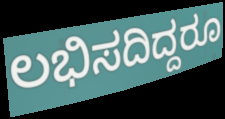
ಲಭಿಸದಿದ್ದರೂ